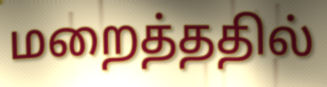
மறைத்ததில்